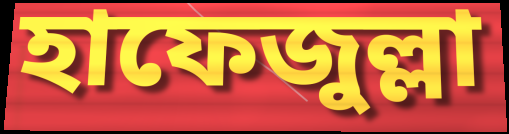
হাফেজুল্লা